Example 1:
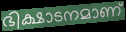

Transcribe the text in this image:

ഭിക്ഷാടനമാണ്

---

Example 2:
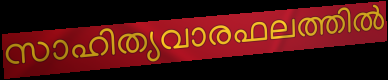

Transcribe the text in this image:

സാഹിത്യവാരഫലത്തിൽ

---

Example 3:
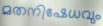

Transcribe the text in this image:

മതനിഷേധവും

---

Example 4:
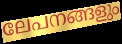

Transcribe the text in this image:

ലേപനങ്ങളും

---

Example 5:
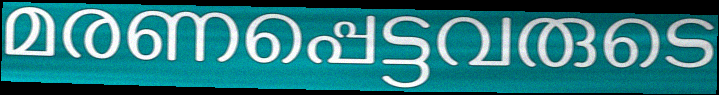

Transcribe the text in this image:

മരണപ്പെട്ടവരുടെ